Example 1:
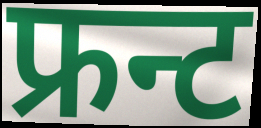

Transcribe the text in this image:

फ्रन्ट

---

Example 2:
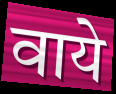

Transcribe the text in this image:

वाये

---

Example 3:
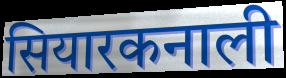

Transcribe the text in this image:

सियारकनाली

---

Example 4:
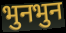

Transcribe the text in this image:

भुनभुन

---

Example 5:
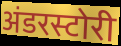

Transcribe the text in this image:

अंडरस्टोरी